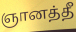
ஞானத்தீ